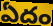
ఏదం